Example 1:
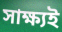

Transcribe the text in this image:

সাক্ষ্যই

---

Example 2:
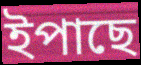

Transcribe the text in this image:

ইপাছে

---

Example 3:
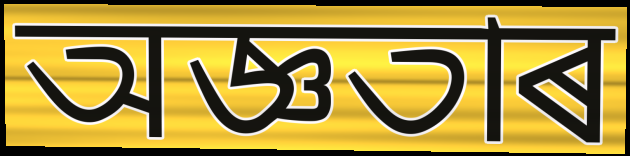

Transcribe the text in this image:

অজ্ঞতাৰ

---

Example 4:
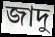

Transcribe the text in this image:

জাদু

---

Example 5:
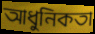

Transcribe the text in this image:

আধুনিকতা